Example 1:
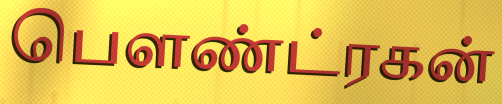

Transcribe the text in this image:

பௌண்ட்ரகன்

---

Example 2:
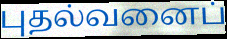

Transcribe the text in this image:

புதல்வனைப்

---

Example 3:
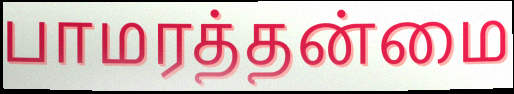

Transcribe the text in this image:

பாமரத்தன்மை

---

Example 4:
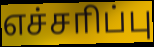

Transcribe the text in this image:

எச்சரிப்பு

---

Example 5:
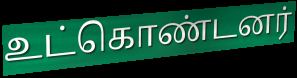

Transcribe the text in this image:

உட்கொண்டனர்